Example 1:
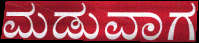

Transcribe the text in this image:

ಮಡುವಾಗ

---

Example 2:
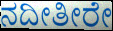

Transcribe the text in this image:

ನದೀತೀರೇ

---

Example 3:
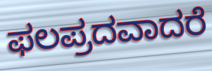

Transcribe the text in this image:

ಫಲಪ್ರದವಾದರೆ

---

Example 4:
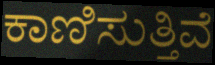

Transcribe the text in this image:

ಕಾಣಿಸುತ್ತಿವೆ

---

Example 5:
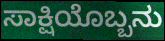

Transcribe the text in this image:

ಸಾಕ್ಷಿಯೊಬ್ಬನು